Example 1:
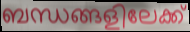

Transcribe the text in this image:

ബന്ധങ്ങളിലേക്ക്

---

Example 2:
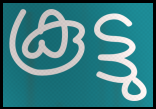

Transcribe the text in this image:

കൂട്ടു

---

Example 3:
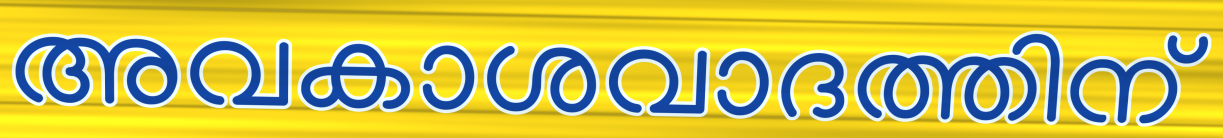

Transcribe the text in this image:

അവകാശവാദത്തിന്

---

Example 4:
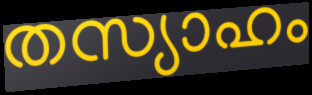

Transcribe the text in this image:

തസ്യാഹം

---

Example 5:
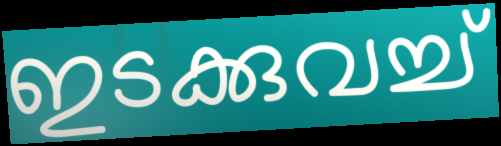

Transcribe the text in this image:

ഇടക്കുവച്ച്